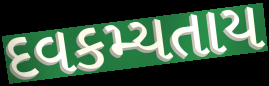
દવકમ્યતાય